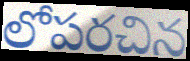
లోపరచిన